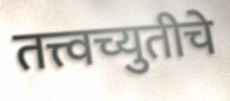
तत्त्वच्युतीचे